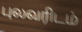
புலவரிடம்